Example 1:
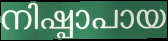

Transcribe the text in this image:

നിഷ്പാപായ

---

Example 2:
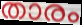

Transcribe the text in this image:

താരം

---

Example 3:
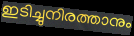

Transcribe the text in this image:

ഇടിച്ചുനിരത്താനും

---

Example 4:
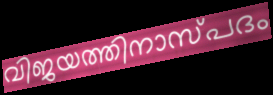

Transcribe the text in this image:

വിജയത്തിനാസ്പദം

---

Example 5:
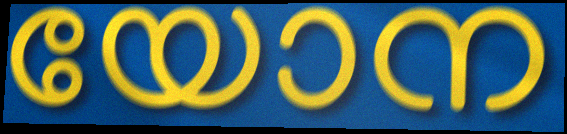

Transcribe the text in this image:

യോന